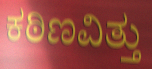
ಕಠಿಣವಿತ್ತು